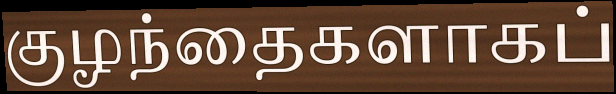
குழந்தைகளாகப்